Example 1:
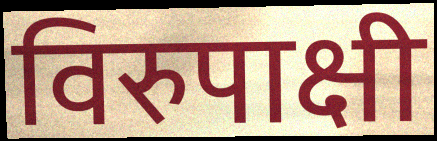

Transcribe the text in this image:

विरुपाक्षी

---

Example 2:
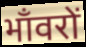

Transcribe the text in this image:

भाँवरों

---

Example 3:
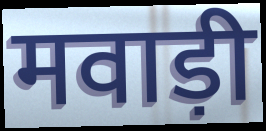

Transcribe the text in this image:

मवाड़ी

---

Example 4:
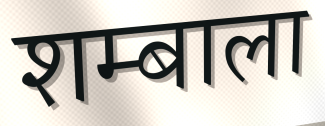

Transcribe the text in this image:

शम्बाला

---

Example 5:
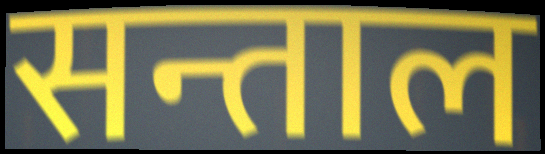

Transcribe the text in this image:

सन्ताल